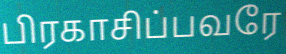
பிரகாசிப்பவரே